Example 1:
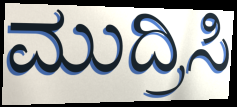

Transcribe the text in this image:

ಮುದ್ರಿಸಿ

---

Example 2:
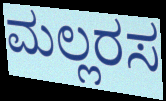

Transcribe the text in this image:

ಮಲ್ಲರಸ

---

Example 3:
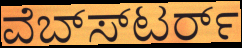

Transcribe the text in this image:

ವೆಬ್ಸ್‍ಟರ್ರ್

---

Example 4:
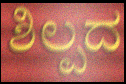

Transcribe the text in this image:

ಶಿಲ್ಪದ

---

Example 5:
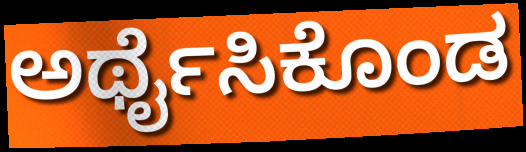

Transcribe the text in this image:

ಅರ್ಥೈಸಿಕೊಂಡ